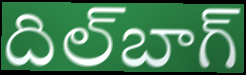
దిల్‌బాగ్